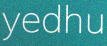
yedhu